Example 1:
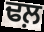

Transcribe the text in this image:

ਢਲ਼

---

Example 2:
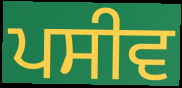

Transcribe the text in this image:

ਪਸੀਵ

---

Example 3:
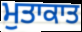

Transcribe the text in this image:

ਮੁਤਾਕਾਤ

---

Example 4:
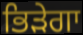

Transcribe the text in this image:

ਭਿੜੇਗਾ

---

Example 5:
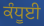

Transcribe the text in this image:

ਕੰਧੂਈ